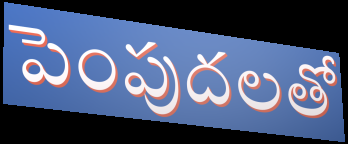
పెంపుదలతో